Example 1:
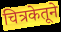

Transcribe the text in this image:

चित्रकेतूने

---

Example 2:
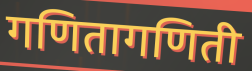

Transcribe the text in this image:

गणितागणिती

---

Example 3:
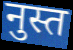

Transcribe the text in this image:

नुस्त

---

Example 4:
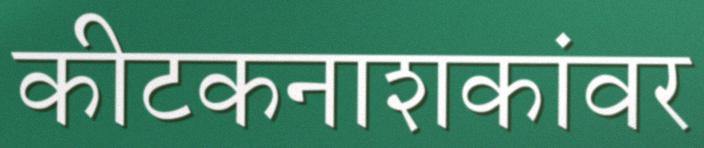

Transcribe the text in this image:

कीटकनाशकांवर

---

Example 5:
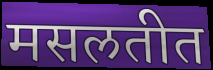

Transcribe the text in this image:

मसलतीत